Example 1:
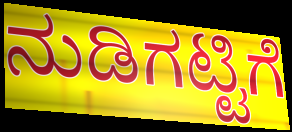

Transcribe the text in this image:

ನುಡಿಗಟ್ಟಿಗೆ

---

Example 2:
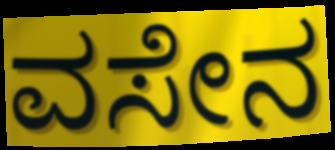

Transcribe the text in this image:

ವಸೇನ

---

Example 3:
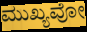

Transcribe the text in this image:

ಮುಖ್ಯವೋ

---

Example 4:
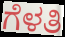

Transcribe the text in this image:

ಗೆಳತಿ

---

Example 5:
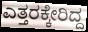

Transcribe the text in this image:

ಎತ್ತರಕ್ಕೇರಿದ್ದ